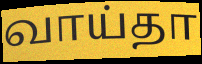
வாய்தா